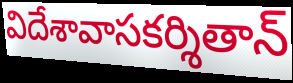
విదేశావాసకర్శితాన్